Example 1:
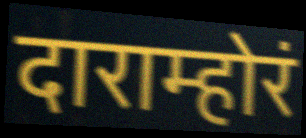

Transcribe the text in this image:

दाराम्होरं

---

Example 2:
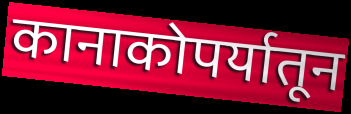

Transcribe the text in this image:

कानाकोपर्यातून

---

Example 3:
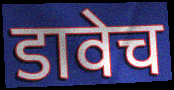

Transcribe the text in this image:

डावेच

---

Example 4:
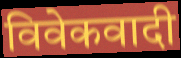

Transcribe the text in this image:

विवेकवादी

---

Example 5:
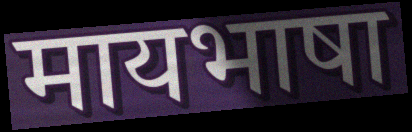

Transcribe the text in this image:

मायभाषा